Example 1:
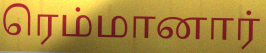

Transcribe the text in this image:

ரெம்மானார்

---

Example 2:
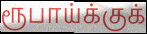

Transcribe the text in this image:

ரூபாய்க்குக்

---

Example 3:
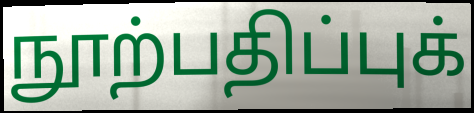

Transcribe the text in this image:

நூற்பதிப்புக்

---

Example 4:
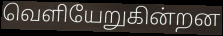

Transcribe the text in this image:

வெளியேறுகின்றன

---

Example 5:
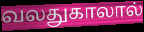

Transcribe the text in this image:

வலதுகாலால்